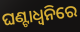
ଘଣ୍ଟାଧ୍ୱନିରେ